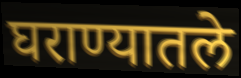
घराण्यातले